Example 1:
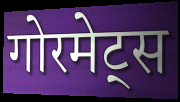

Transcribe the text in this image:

गोरमेट्स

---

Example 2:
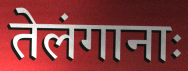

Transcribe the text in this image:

तेलंगानाः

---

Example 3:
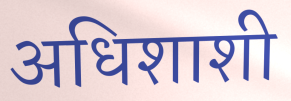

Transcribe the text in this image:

अधिशाशी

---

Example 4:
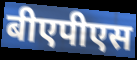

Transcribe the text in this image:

बीएपीएस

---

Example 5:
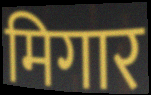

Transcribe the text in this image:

मिगार